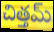
చిత్తమ్